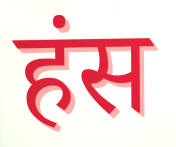
हंस